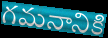
గమనానికి